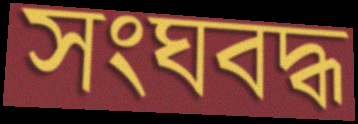
সংঘবদ্ধ